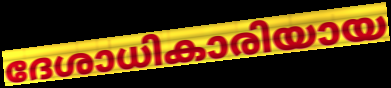
ദേശാധികാരിയായ